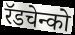
रॅडचेन्को